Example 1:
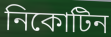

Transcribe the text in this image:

নিকোটিন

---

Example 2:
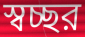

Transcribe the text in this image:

স্বচ্ছর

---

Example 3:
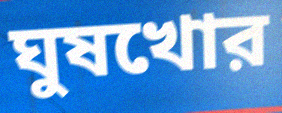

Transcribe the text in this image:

ঘুষখোর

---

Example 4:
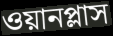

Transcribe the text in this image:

ওয়ানপ্লাস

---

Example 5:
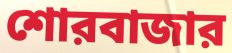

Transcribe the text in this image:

শোরবাজার